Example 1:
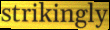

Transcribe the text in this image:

strikingly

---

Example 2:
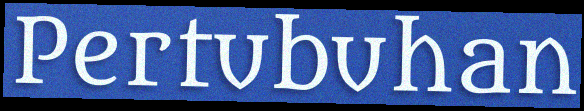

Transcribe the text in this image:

Pertubuhan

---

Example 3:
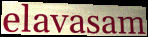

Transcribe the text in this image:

elavasam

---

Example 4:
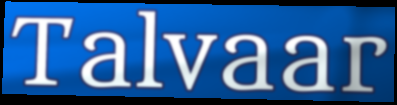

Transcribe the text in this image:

Talvaar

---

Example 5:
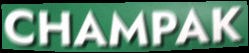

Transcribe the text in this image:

CHAMPAK